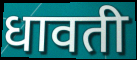
धावती